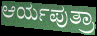
ಆರ್ಯಪುತ್ರಾ